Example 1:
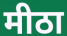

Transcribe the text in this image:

मीठा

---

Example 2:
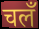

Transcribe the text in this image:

चलँ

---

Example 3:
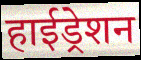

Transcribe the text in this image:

हाईड्रेशन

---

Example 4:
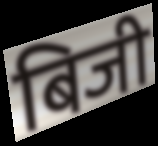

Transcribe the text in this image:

बिजी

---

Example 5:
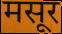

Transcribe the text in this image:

मसूर